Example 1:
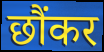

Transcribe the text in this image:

छौंकर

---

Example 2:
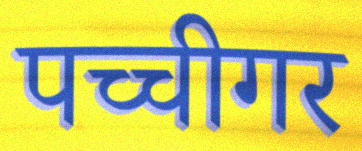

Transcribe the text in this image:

पच्चीगर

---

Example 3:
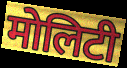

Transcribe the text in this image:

मोलिटी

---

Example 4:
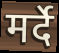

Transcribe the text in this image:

मर्दे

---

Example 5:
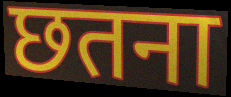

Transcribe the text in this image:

छतना